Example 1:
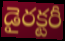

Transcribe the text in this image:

డైరక్టరీ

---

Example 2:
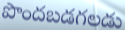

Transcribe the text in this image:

పొందబడగలడు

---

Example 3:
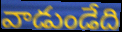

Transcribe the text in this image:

వాడుండేది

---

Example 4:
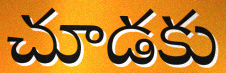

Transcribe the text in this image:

చూడకు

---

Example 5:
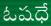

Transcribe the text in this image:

ఓషధే